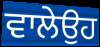
ਵਾਲੇਉਹ